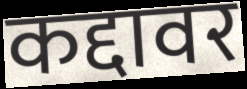
कद्दावर